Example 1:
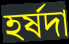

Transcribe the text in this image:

হর্ষদা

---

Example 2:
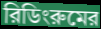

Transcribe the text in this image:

রিডিংরুমের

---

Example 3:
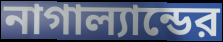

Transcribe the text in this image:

নাগাল্যান্ডের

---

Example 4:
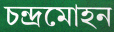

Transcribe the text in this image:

চন্দ্রমোহন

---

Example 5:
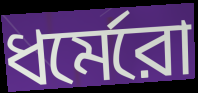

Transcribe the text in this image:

ধর্মেরো